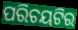
ପରିଚୟଟିର